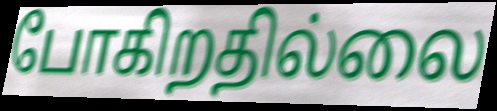
போகிறதில்லை